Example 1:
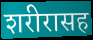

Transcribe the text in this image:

शरीरासह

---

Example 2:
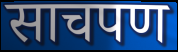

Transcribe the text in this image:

साचपण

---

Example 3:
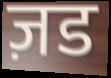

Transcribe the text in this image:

ज़ड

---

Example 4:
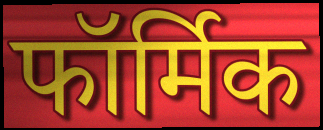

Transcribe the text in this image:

फॉर्मिक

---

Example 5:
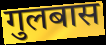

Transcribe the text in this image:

गुलबास